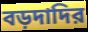
বড়দাদির